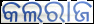
କଲରାଜ